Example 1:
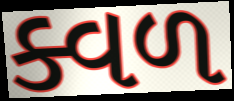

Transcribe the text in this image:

ક્વળ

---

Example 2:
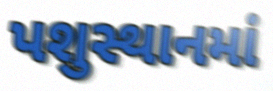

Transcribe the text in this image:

પશુસ્થાનમાં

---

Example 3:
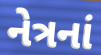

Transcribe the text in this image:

નેત્રનાં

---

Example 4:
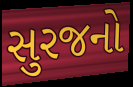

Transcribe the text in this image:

સુરજનો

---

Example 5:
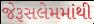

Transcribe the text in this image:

જેરૂસલેમમાંથી